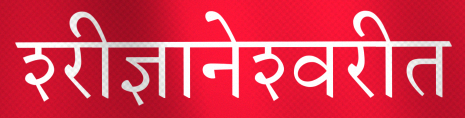
श्रीज्ञानेश्वरीत